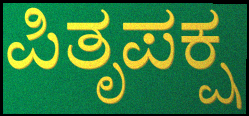
ಪಿತೃಪಕ್ಷ